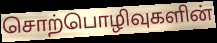
சொற்பொழிவுகளின்